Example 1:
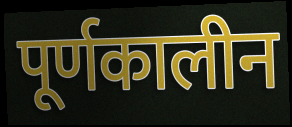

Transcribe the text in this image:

पूर्णकालीन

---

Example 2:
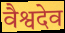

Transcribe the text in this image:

वैश्वदेव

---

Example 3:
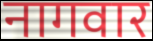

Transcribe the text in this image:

नागवार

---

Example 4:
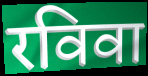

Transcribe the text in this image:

रविवा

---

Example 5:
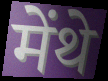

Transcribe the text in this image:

मेंथे